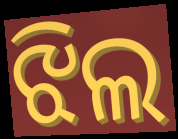
ଝିଲ